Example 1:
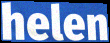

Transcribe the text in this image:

helen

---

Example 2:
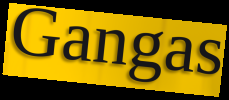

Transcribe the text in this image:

Gangas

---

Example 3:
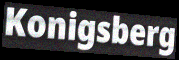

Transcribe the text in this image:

Konigsberg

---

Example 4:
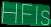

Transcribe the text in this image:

HFIs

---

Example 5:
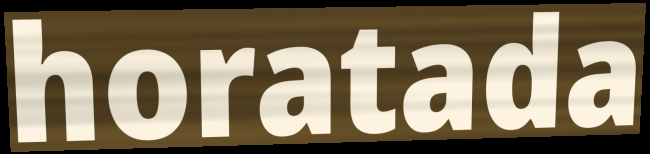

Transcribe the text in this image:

horatada